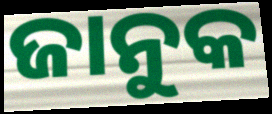
ଜାନୁକ